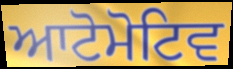
ਆਟੋਮੋਟਿਵ